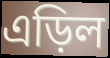
এড়িল